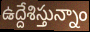
ఉద్దేశిస్తున్నాం